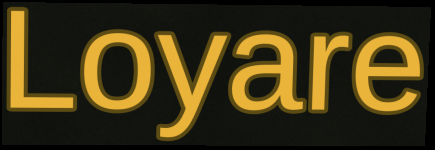
Loyare